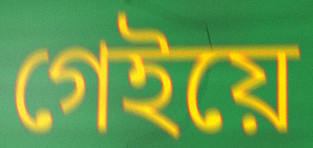
গেইয়ে